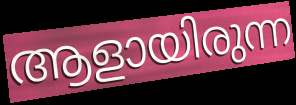
ആളായിരുന്ന